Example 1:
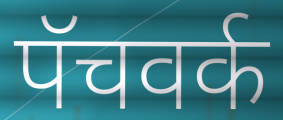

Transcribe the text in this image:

पॅचवर्क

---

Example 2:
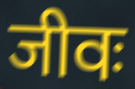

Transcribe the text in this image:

जीवः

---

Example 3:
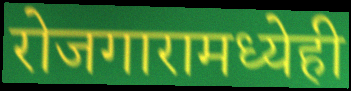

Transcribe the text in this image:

रोजगारामध्येही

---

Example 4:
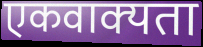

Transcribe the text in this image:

एकवाक्यता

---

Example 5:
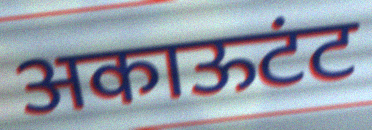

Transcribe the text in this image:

अकाऊटंट